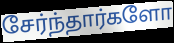
சேர்ந்தார்களோ